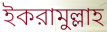
ইকরামুল্লাহ